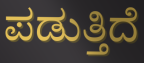
ಪಡುತ್ತಿದೆ